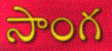
సాంగ